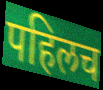
पहिलच